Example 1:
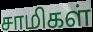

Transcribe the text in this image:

சாமிகள்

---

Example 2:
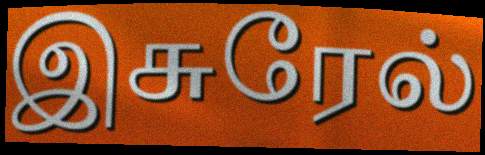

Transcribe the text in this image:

இசுரேல்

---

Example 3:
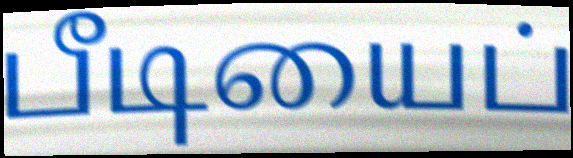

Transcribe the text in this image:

பீடியைப்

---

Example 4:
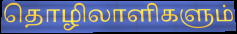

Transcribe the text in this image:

தொழிலாளிகளும்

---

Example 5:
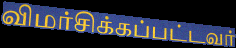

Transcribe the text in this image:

விமர்சிக்கப்பட்டவர்